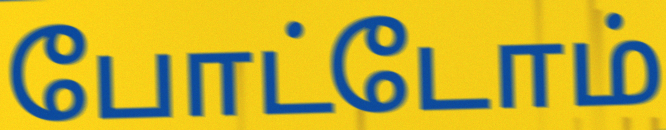
போட்டோம்